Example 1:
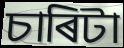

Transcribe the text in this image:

চাৰিটা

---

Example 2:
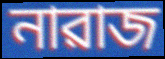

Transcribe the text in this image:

নাৱাজ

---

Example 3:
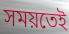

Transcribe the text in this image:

সময়তেই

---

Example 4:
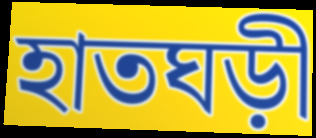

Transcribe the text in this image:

হাতঘড়ী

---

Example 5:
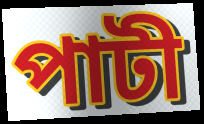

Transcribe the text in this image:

পাটী